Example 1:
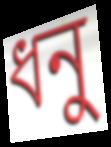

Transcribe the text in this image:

ধনু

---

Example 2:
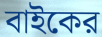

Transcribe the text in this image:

বাইকের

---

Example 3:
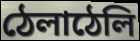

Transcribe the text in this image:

ঠেলাঠেলি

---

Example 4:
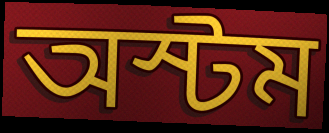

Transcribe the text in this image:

অস্টম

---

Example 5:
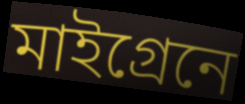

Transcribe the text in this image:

মাইগ্রেনে